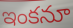
ఇంకనూ